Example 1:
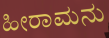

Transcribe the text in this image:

ಹೀರಾಮನು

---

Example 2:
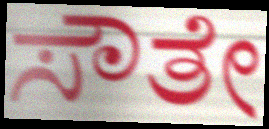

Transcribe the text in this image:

ಸೌತೇ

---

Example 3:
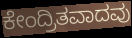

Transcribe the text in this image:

ಕೇಂದ್ರಿತವಾದವು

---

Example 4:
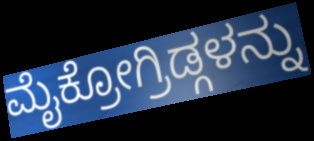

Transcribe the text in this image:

ಮೈಕ್ರೋಗ್ರಿಡ್ಗಳನ್ನು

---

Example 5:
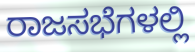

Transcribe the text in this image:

ರಾಜಸಭೆಗಳಲ್ಲಿ